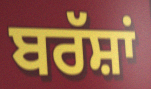
ਬਰੱਸ਼ਾਂ